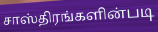
சாஸ்திரங்களின்படி